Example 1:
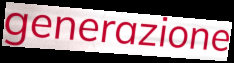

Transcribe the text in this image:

generazione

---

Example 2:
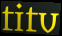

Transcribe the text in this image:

titu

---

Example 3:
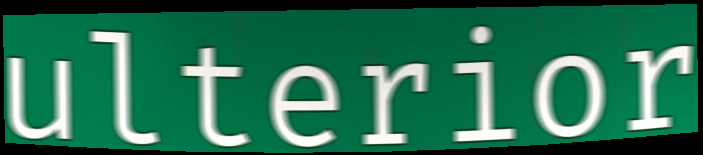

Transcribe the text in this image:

ulterior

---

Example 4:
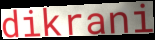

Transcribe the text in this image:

dikrani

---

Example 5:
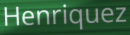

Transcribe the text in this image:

Henriquez